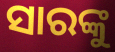
ସାରଙ୍କୁ